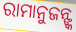
ରାମାନୁଜନ୍ଙ୍କ